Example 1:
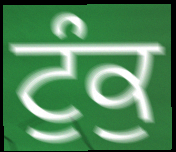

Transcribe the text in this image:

ਟੁੰਕੁ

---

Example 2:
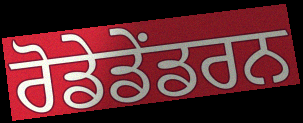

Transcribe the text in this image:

ਰੋਡੇਡੇਂਡਰਨ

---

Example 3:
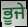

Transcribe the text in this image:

ਭੂਜੇ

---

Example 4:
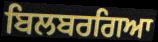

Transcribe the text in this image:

ਬਿਲਬਰਗਿਆ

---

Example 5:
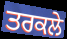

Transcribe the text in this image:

ਤਰਕਲੇ